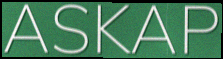
ASKAP